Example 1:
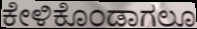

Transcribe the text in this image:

ಕೇಳಿಕೊಂಡಾಗಲೂ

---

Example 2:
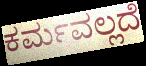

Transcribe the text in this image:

ಕರ್ಮವಲ್ಲದೆ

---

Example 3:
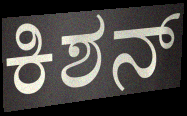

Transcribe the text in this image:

ಕಿಶನ್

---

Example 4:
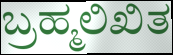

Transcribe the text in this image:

ಬ್ರಹ್ಮಲಿಖಿತ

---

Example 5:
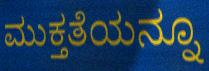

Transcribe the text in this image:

ಮುಕ್ತತೆಯನ್ನೂ